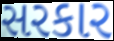
સરકાર